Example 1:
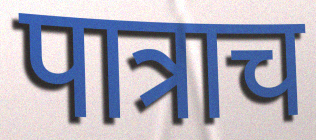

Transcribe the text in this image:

पात्राच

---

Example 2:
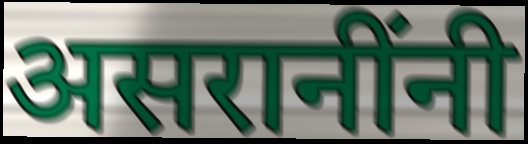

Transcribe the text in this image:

असरानींनी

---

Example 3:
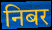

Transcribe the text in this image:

निबर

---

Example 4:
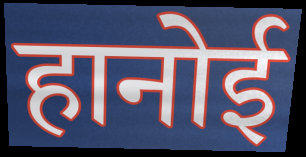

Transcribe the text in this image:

हानोई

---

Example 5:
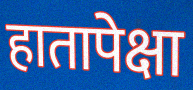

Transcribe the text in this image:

हातापेक्षा